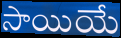
సాయియే